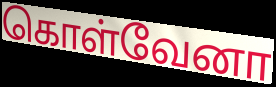
கொள்வேனா